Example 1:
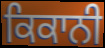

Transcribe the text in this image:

ਕਿਕਾਨੀ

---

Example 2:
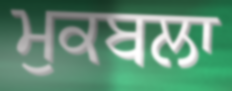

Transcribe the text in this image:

ਮੁਕਬਲਾ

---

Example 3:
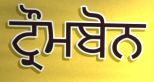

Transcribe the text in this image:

ਟ੍ਰੌਮਬੋਨ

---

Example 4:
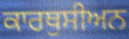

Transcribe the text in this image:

ਕਾਰਥੁਸੀਅਨ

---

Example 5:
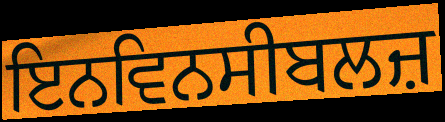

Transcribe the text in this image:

ਇਨਵਿਨਸੀਬਲਜ਼